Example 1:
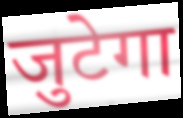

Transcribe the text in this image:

जुटेगा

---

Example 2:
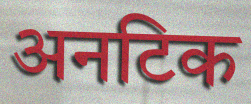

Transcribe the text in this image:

अनटिक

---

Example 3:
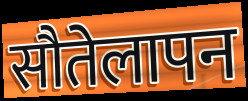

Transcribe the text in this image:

सौतेलापन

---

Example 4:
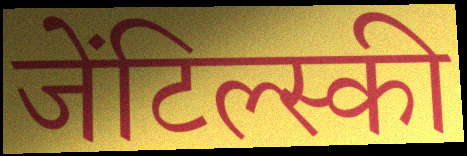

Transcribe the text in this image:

जेंटिल्स्की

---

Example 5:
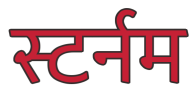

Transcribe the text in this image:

स्टर्नम